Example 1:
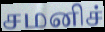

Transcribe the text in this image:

சமனிச்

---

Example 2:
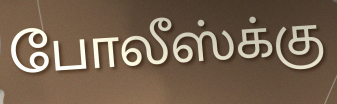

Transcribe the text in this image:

போலீஸ்க்கு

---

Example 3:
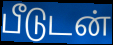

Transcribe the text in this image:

பீடுடன்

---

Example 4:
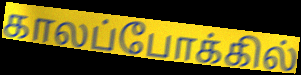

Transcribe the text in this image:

காலப்போக்கில்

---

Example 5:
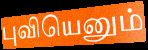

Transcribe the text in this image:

புவியெனும்